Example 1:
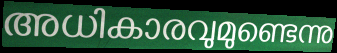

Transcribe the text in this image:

അധികാരവുമുണ്ടെന്നു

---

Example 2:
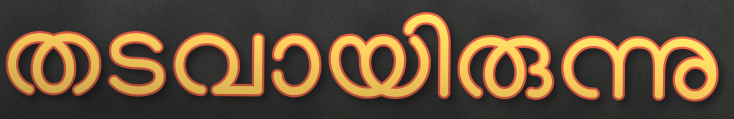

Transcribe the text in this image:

തടവായിരുന്നു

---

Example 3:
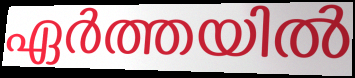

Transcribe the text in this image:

ഏർത്തയിൽ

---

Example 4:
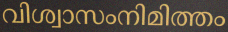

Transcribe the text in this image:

വിശ്വാസംനിമിത്തം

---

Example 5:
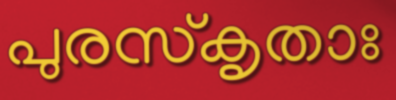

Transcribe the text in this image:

പുരസ്കൃതാഃ